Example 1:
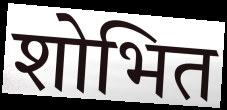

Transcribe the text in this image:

शोभित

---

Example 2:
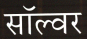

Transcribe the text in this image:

सॉल्वर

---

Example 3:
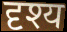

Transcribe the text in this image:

दृश्‍य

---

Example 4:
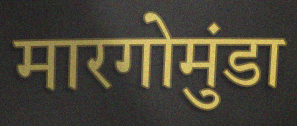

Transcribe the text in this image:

मारगोमुंडा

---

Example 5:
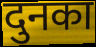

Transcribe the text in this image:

दुनका